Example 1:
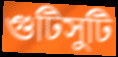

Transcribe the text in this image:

গুটিসুটি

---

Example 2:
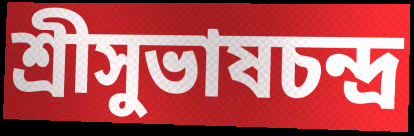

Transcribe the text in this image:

শ্রীসুভাষচন্দ্র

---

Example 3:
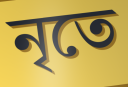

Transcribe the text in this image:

নৃতে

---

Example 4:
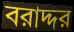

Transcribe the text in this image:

বরাদ্দর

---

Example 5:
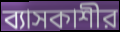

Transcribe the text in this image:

ব্যাসকাশীর